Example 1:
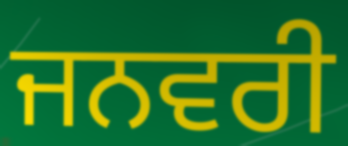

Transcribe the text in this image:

ਜਨਵਰੀ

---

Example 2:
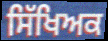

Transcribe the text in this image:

ਸਿੱਖਿਅਕ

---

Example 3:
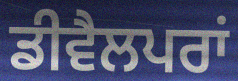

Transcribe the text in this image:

ਡੀਵੈਲਪਰਾਂ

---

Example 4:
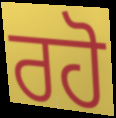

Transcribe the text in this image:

ਰਹੋ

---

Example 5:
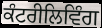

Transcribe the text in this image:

ਕੰਟਰੀਲਿਵਿੰਗ